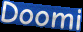
Doomi